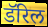
डॅरिल